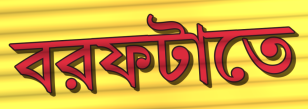
বরফটাতে